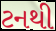
ટનથી